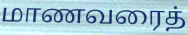
மாணவரைத்